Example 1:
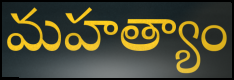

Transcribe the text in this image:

మహత్యాం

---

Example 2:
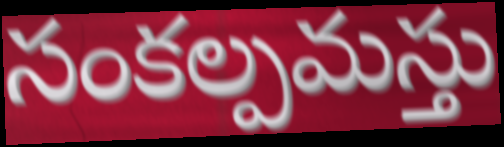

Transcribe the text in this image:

సంకల్పమస్తు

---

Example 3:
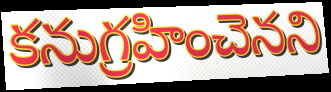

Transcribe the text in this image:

కనుగ్రహించెనని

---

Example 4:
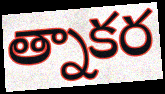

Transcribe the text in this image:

త్నాకర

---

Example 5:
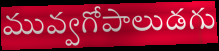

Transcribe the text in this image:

మువ్వగోపాలుడగు